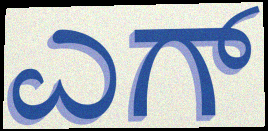
ಎಗ್